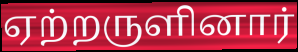
ஏற்றருளினார்